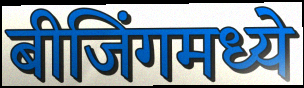
बीजिंगमध्ये